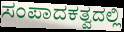
ಸಂಪಾದಕತ್ವದಲ್ಲಿ